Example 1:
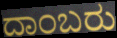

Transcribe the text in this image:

ದಾಂಬರು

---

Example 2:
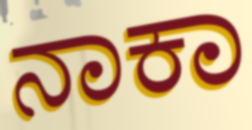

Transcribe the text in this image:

ನಾಕಾ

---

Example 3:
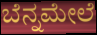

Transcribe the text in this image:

ಬೆನ್ನಮೇಲೆ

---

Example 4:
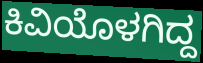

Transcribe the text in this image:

ಕಿವಿಯೊಳಗಿದ್ದ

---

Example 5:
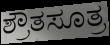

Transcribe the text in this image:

ಶ್ರೌತಸೂತ್ರ